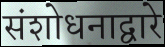
संशोधनाद्वारे